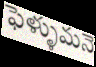
ఫెళ్ళుమనె